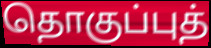
தொகுப்புத்